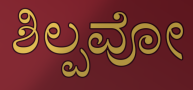
ಶಿಲ್ಪವೋ